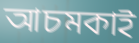
আচমকাই